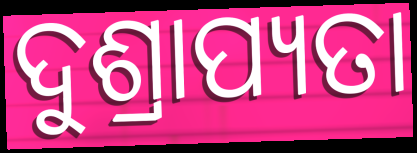
ଦୁଶ୍ରାପ୍ୟତା